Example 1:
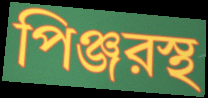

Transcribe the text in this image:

পিঞ্জরস্থ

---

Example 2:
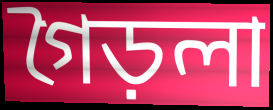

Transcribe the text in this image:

গৈড়লা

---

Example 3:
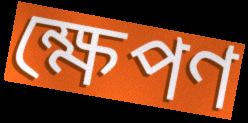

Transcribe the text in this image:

ক্ষেপণ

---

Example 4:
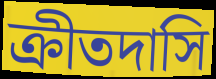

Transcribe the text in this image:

ক্রীতদাসি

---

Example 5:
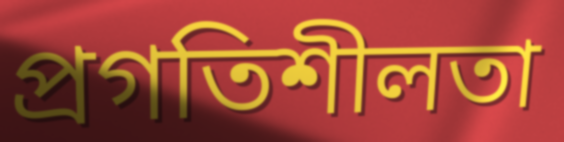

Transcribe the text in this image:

প্রগতিশীলতা